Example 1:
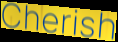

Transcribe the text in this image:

Cherish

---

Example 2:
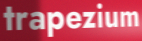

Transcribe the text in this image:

trapezium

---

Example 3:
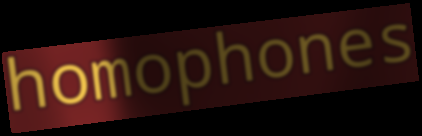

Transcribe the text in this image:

homophones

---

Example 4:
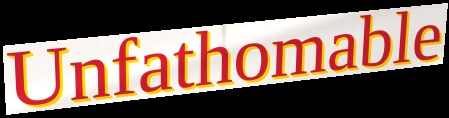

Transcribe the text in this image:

Unfathomable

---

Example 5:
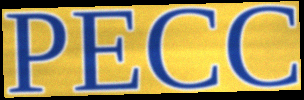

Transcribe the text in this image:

PECC